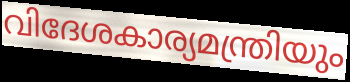
വിദേശകാര്യമന്ത്രിയും